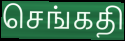
செங்கதி